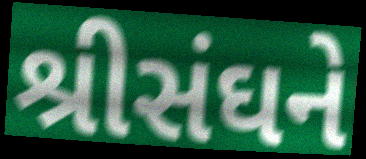
શ્રીસંઘને